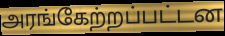
அரங்கேற்றப்பட்டன